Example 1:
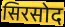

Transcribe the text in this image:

सिरसोद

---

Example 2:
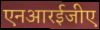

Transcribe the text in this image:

एनआरईजीए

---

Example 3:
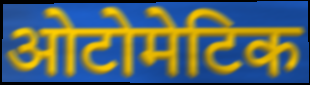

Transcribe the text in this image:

ओटोमेटिक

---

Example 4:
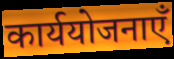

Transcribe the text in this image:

कार्ययोजनाएँ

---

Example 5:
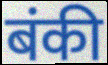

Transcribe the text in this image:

बंकी